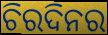
ଚିରଦିନର